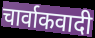
चार्वाकवादी